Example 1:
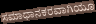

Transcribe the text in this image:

ಸಮಾಧಾನಕರವಾಗಿಯೂ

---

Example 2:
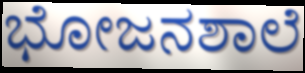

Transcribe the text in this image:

ಭೋಜನಶಾಲೆ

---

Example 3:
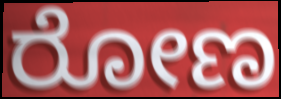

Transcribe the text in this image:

ರೋಣ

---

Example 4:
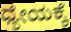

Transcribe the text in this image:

ಧ್ಯೇಯಕ್ಕೆ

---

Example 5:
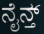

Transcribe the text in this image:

ನೈನ್ತ್